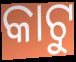
କାଟୁ